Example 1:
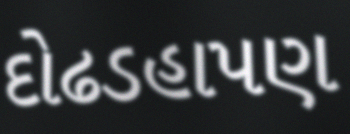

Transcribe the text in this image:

દોઢડહાપણ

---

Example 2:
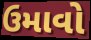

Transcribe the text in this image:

ઉમાવો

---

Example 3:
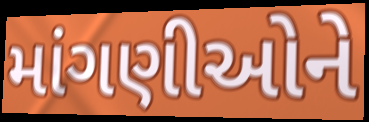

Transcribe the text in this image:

માંગણીઓને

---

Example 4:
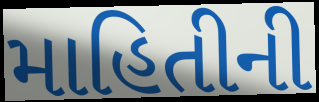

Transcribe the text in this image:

માહિતીની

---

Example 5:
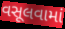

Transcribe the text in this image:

વસૂલવામાં